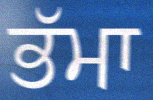
ਭੱਮਾ